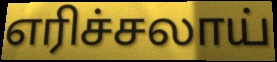
எரிச்சலாய்